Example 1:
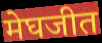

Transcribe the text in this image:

मेघजीत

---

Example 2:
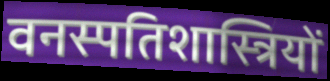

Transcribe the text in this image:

वनस्पतिशास्त्रियों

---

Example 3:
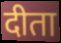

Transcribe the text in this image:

दीता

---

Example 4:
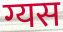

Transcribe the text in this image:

ग्यस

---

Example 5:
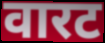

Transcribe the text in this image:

वारट